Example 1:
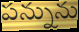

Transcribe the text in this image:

పన్నును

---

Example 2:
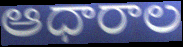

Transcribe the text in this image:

ఆధారాల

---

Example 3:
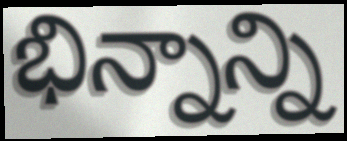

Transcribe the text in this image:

భిన్నాన్ని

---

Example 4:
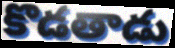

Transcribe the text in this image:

కొడతాడు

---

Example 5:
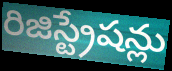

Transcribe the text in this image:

రిజిస్ట్రేషన్లు